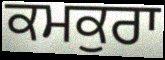
ਕਮਕੁਰਾ